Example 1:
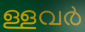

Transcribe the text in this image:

ള്ളവർ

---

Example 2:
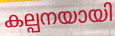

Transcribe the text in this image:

കല്പനയായി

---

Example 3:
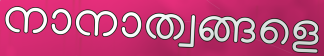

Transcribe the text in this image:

നാനാത്വങ്ങളെ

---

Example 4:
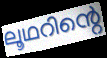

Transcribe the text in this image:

ലൂഥറിന്റെ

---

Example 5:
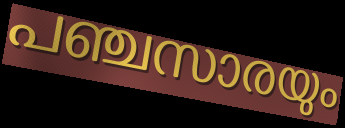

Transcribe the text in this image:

പഞ്ചസാരയും